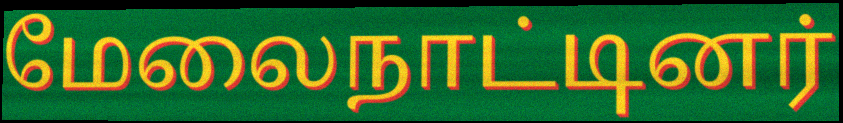
மேலைநாட்டினர்